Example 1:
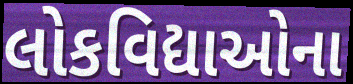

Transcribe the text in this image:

લોકવિદ્યાઓના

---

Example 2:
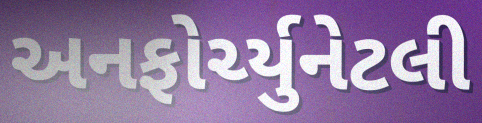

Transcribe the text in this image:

અનફોર્ચ્યુનેટલી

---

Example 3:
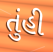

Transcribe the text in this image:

તુંહી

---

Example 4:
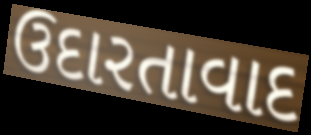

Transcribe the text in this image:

ઉદારતાવાદ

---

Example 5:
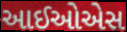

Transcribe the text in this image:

આઈઓએસ